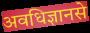
अवधिज्ञानसे